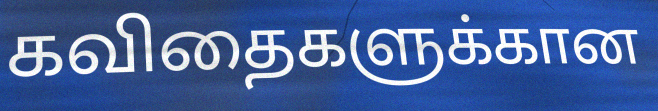
கவிதைகளுக்கான